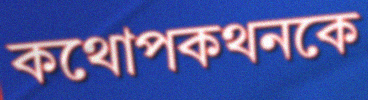
কথোপকথনকে